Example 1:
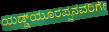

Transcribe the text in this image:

ಯಡ್ಡ್‌ಯೂರಪ್ಪನವರಿಗೇ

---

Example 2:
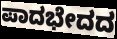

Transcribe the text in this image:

ಪಾದಭೇದದ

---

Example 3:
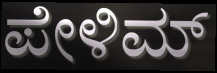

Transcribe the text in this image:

ಪೇಳಿಮ್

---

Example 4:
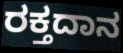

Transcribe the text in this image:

ರಕ್ತದಾನ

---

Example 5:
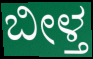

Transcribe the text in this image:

ಬೀಳ್ತ